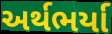
અર્થભર્યા